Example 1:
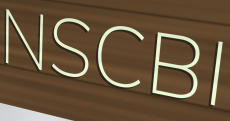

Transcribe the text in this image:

NSCBI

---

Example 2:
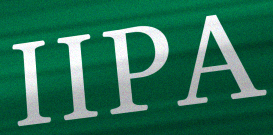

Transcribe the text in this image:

IIPA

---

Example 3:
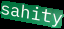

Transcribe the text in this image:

sahity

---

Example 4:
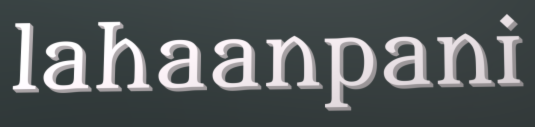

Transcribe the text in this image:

lahaanpani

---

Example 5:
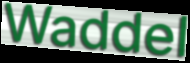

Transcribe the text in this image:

Waddel